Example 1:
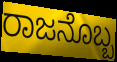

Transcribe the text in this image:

ರಾಜನೊಬ್ಬ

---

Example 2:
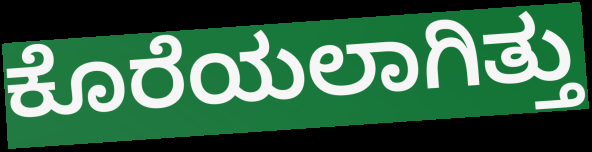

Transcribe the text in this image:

ಕೊರೆಯಲಾಗಿತ್ತು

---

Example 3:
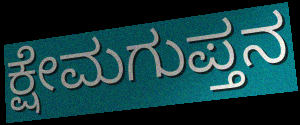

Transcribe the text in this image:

ಕ್ಷೇಮಗುಪ್ತನ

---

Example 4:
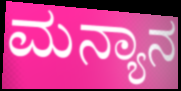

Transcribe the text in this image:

ಮನ್ಯಾನ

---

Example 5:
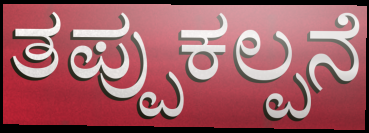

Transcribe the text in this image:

ತಪ್ಪುಕಲ್ಪನೆ